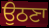
ਉਠਣਾ